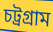
চট্রগ্রাম